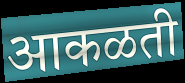
आकळती